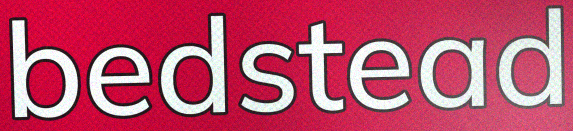
bedstead